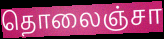
தொலைஞ்சா